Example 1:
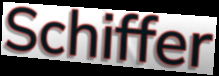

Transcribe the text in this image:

Schiffer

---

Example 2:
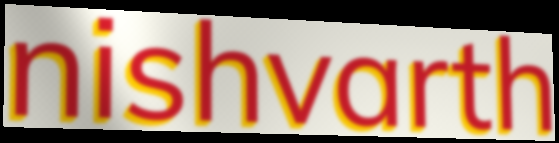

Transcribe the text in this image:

nishvarth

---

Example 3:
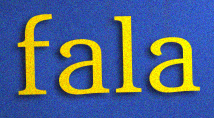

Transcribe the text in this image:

fala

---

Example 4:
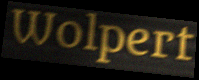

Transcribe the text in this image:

Wolpert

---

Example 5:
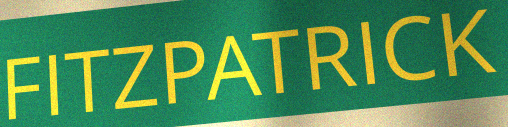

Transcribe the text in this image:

FITZPATRICK